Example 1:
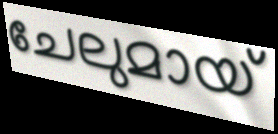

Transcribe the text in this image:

ചേലുമായ്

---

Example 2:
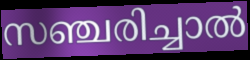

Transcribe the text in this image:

സഞ്ചരിച്ചാൽ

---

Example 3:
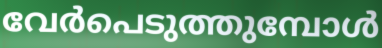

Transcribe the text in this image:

വേർപെടുത്തുമ്പോൾ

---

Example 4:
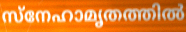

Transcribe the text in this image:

സ്നേഹാമൃതത്തിൽ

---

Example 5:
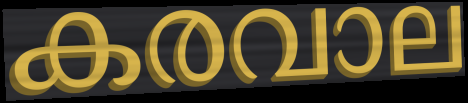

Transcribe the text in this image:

കരവാല